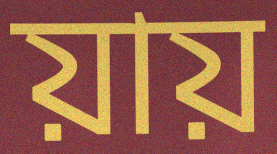
য়ায়